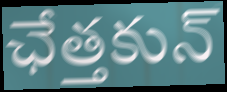
ఛేత్తకున్